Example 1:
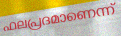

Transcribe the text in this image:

ഫലപ്രദമാണെന്ന്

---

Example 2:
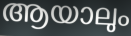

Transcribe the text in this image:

ആയാലും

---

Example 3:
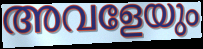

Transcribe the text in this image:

അവളേയും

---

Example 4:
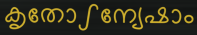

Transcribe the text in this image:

കൃതോഽന്യേഷാം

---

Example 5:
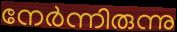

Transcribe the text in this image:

നേർന്നിരുന്നു